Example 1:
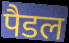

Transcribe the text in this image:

पैडल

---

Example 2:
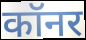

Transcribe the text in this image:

कॉनर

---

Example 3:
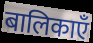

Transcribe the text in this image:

बालिकाएँ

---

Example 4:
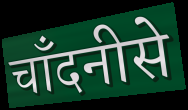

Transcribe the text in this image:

चाँदनीसे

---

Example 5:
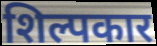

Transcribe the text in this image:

शिल्पकार